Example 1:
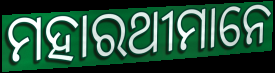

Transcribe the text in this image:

ମହାରଥୀମାନେ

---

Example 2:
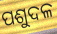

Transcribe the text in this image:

ପଶୁଦଳ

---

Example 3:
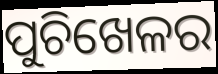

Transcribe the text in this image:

ପୁଚିଖେଳର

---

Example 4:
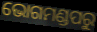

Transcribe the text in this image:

ଭୋଗମଣ୍ଡପରୁ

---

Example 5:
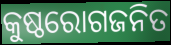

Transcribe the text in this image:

କୁଷ୍ଠରୋଗଜନିତ